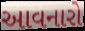
આવનારો